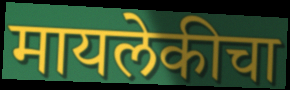
मायलेकीचा